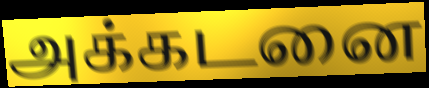
அக்கடனை